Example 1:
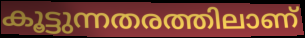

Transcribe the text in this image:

കൂട്ടുന്നതരത്തിലാണ്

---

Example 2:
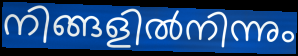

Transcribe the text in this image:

നിങ്ങളിൽനിന്നും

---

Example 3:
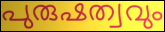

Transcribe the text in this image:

പുരുഷത്വവും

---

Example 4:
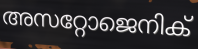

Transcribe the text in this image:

അസറ്റോജെനിക്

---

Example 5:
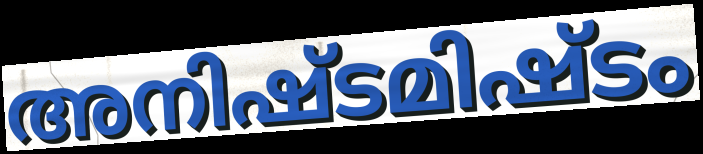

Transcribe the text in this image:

അനിഷ്ടമിഷ്ടം